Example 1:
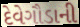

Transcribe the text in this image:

દેવેગૌડાની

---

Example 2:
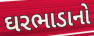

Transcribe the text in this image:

ઘરભાડાનો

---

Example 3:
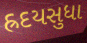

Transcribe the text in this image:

હ્રદયસુધા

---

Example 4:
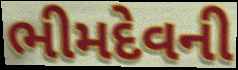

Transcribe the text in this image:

ભીમદેવની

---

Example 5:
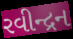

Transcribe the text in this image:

રવીન્દ્રન